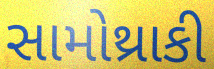
સામોથ્રાકી